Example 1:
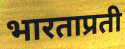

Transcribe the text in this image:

भारताप्रती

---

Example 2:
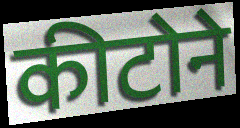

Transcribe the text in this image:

कीटोने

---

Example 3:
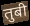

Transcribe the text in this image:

तुबी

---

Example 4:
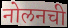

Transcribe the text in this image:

नोलनची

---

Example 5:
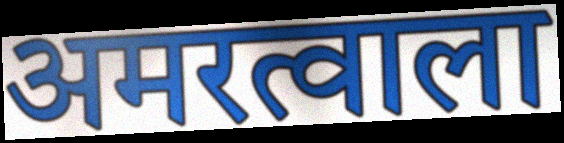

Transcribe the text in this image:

अमरत्वाला